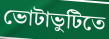
ভোটাভুটিতে